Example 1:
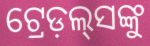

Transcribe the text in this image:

ଟ୍ରେଡ଼ଲ୍‍ସଙ୍କୁ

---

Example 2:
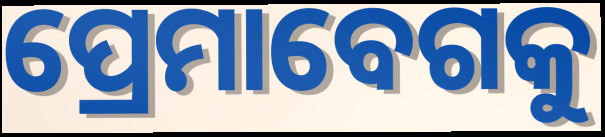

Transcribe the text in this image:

ପ୍ରେମାବେଗକୁ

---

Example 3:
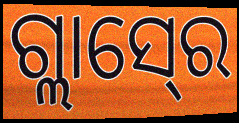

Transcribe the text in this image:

ଗ୍ଲାସ୍‍ରେ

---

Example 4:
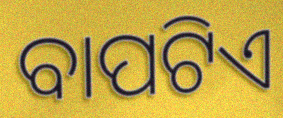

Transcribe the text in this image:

ବାପଟିଏ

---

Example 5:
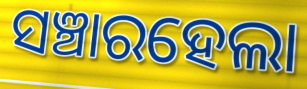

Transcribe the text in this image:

ସଞ୍ଚାରହେଲା